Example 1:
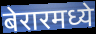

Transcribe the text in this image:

बेरारमध्ये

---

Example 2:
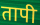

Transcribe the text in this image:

तापी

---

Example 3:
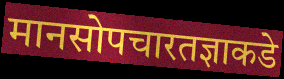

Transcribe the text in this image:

मानसोपचारतज्ञाकडे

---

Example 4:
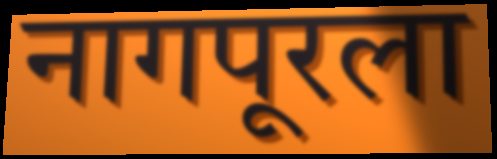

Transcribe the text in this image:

नागपूरला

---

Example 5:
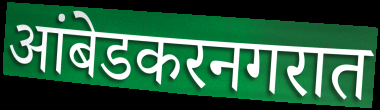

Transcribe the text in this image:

आंबेडकरनगरात